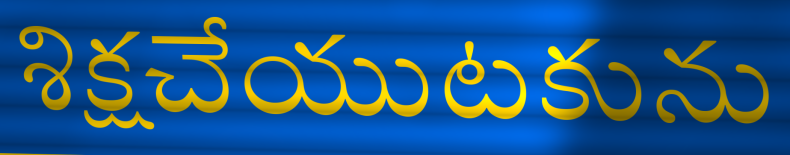
శిక్షచేయుటకును